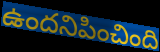
ఉందనిపించింది